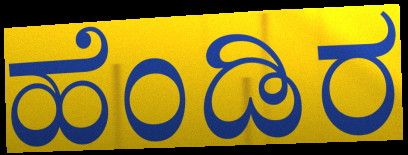
ಹೆಂಡಿರ